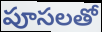
పూసలతో